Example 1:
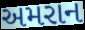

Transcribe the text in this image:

અમરાન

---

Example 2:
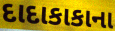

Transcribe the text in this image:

દાદાકાકાના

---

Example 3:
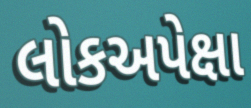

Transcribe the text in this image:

લોકઅપેક્ષા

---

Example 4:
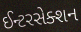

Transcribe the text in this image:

ઈન્ટરસેક્શન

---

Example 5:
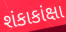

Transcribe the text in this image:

શંકાકાંક્ષા